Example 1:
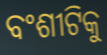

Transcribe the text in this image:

ବଂଶୀଟିକୁ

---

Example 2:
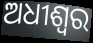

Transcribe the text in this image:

ଅଧୀଶ୍ୱର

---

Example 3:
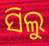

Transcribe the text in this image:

ସିଲୁ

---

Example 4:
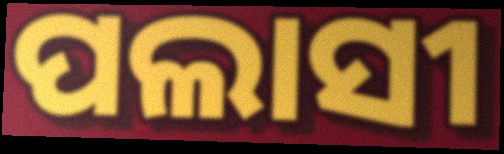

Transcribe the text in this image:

ପଲାସୀ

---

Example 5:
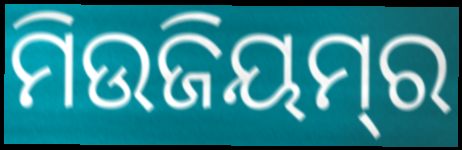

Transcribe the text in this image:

ମିଉଜିୟମ୍‌ର